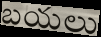
బయలు